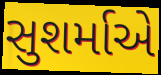
સુશર્માએ